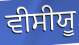
ਵੀਸੀਯੂ